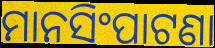
ମାନସିଂପାଟଣା